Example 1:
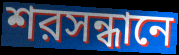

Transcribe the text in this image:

শরসন্ধানে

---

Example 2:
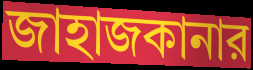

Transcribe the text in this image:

জাহাজকানার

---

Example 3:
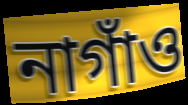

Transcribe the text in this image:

নাগাঁও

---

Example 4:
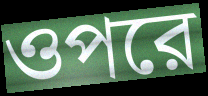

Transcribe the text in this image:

ওপরে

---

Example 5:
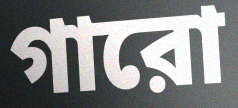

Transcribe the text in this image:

গারো